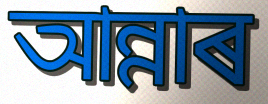
আন্নাৰ